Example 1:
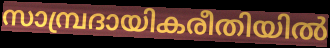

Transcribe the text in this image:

സാമ്പ്രദായികരീതിയിൽ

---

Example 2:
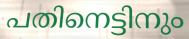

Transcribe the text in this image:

പതിനെട്ടിനും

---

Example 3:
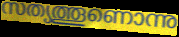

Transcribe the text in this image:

സത്യത്തൂണൊന്നു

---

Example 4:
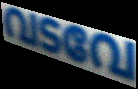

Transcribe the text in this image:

വടവേ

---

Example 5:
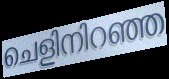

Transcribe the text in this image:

ചെളിനിറഞ്ഞ